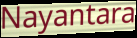
Nayantara